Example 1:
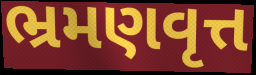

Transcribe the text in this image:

ભ્રમણવૃત્ત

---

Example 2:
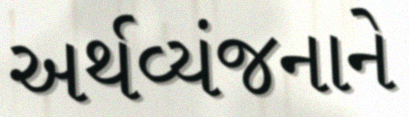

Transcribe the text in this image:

અર્થવ્યંજનાને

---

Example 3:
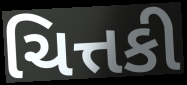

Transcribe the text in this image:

ચિત્તકી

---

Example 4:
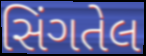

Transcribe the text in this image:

સિંગતેલ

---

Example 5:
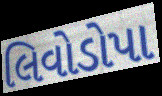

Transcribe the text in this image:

લિવોડોપા